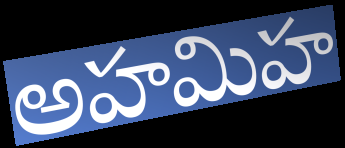
అహమిహ